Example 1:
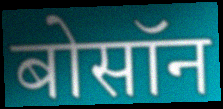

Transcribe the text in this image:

बोसॉन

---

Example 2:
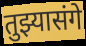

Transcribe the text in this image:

तुझ्यासंगे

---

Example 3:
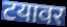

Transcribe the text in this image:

टयावर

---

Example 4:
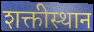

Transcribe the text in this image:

शक्तीस्थान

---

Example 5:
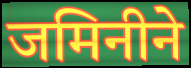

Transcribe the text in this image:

जमिनीने